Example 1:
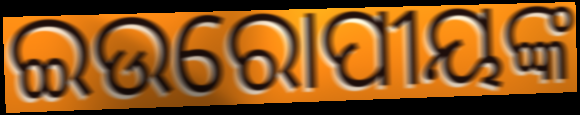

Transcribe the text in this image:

ଇଉରୋପୀୟଙ୍କ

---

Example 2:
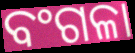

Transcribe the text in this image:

ବଂଗଳା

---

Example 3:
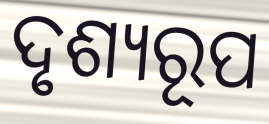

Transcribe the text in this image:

ଦୃଶ୍ୟରୂପ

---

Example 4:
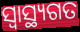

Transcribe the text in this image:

ସ୍ବାସ୍ଥ୍ୟଗତ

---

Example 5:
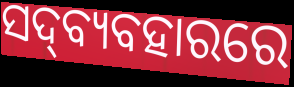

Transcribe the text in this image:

ସଦ୍‍ବ୍ୟବହାରରେ